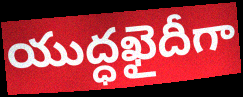
యుద్ధఖైదీగా